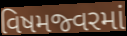
વિષમજ્વરમાં